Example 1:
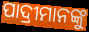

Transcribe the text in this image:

ପାଦ୍ରୀମାନଙ୍କୁ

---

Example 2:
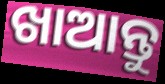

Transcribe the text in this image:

ଖାଆନ୍ତୁ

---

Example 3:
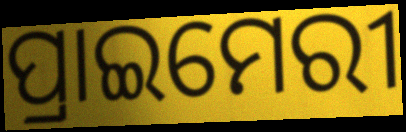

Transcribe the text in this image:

ପ୍ରାଇମେରୀ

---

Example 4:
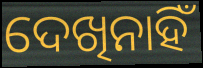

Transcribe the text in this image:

ଦେଖିନାହିଁ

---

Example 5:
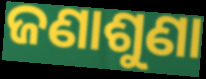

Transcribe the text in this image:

ଜଣାଶୁଣା